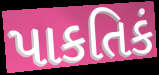
પાકતિકં